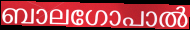
ബാലഗോപാൽ